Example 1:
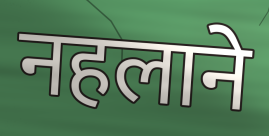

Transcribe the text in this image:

नहलाने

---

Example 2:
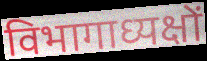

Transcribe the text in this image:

विभागाध्‍यक्षों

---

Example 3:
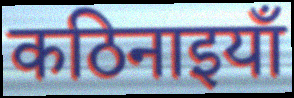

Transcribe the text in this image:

कठिनाइयाँ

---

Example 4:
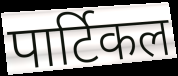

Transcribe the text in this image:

पार्टिकल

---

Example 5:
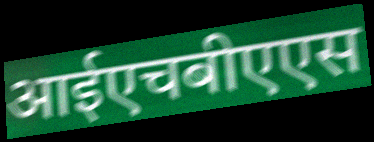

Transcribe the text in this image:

आईएचबीएएस